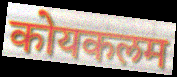
कोयकलम